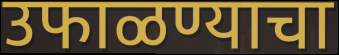
उफाळण्याचा